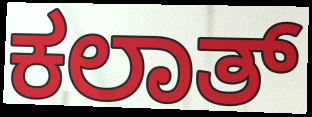
ಕಲಾತ್